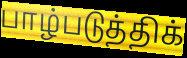
பாழ்படுத்திக்